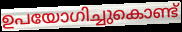
ഉപയോഗിച്ചുകൊണ്ട്